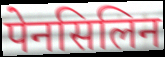
पेनसिलिन